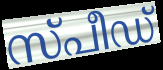
സ്പീഡ്